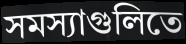
সমস্যাগুলিতে